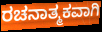
ರಚನಾತ್ಮಕವಾಗಿ